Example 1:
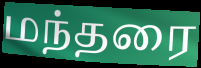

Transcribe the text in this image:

மந்தரை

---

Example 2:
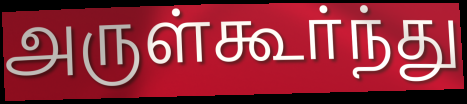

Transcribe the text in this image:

அருள்கூர்ந்து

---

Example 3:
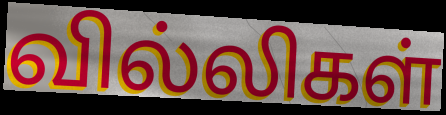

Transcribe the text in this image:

வில்லிகள்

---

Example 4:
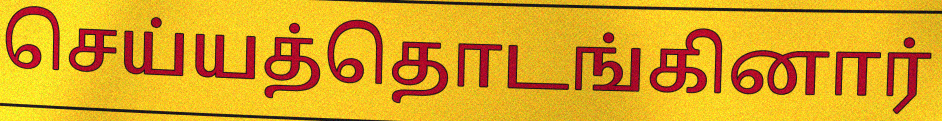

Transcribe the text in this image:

செய்யத்தொடங்கினார்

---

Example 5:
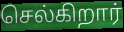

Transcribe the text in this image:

செல்கிறார்